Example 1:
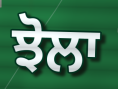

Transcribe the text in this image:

ਝੋਲਾ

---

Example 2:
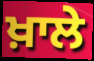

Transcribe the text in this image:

ਖ਼ਾਲੇ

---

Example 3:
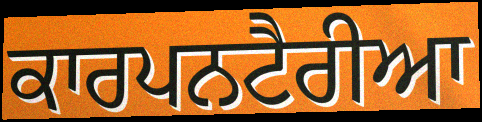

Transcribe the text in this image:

ਕਾਰਪਨਟੈਰੀਆ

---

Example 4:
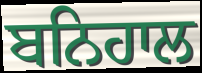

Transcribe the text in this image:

ਬਨਿਹਾਲ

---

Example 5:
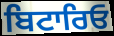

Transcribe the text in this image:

ਬਿਟਾਰਿਓ